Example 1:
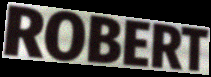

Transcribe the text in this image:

ROBERT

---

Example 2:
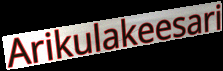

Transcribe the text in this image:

Arikulakeesari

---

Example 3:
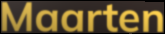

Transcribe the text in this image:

Maarten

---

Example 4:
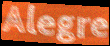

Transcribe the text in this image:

Alegre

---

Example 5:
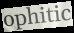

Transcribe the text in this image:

ophitic